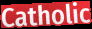
Catholic